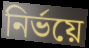
নিৰ্ভয়ে